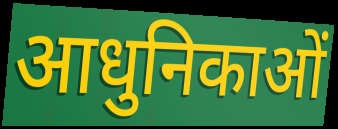
आधुनिकाओं